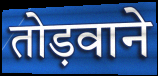
तोड़वाने